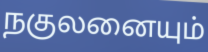
நகுலனையும்